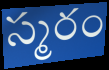
స్మరం